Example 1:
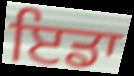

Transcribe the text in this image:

ਇਡਾ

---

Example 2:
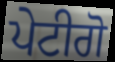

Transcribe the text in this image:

ਪੇਟੀਗੋ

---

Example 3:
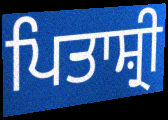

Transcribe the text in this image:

ਪਿਤਾਸ਼੍ਰੀ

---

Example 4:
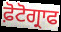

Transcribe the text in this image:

ਫ਼ੋਟੋਗ੍ਰਾਫ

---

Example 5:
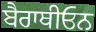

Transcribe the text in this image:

ਬੈਰਾਥੀਓਨ